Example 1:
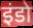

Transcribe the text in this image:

इंडो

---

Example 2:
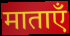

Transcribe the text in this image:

माताएँ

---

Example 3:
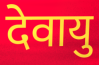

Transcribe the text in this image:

देवायु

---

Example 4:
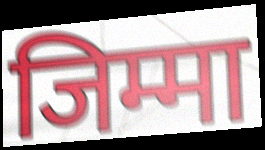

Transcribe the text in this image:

जिम्‍मा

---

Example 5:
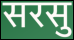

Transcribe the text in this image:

सरसु